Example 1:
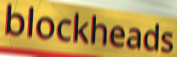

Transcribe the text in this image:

blockheads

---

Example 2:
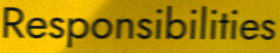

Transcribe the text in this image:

Responsibilities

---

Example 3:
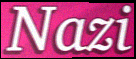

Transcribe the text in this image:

Nazi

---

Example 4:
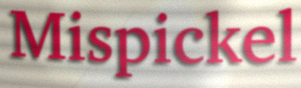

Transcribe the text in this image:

Mispickel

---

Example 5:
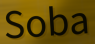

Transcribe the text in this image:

Soba